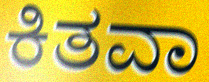
ಕಿತವಾ